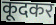
कूदकर